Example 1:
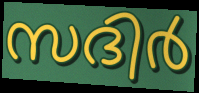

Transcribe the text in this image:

സദിർ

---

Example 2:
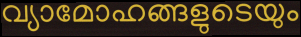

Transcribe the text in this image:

വ്യാമോഹങ്ങളുടെയും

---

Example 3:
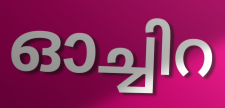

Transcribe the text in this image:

ഓച്ചിറ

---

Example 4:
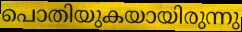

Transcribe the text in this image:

പൊതിയുകയായിരുന്നു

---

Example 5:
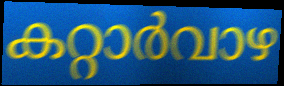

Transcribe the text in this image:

കറ്റാർവാഴ